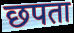
छपता